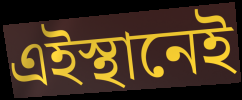
এইস্থানেই